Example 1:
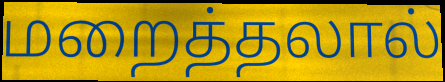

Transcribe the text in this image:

மறைத்தலால்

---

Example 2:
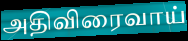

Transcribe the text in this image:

அதிவிரைவாய்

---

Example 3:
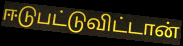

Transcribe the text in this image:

ஈடுபட்டுவிட்டான்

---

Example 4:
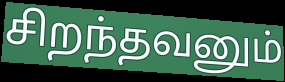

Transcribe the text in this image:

சிறந்தவனும்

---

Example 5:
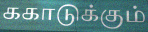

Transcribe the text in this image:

ககாடுக்கும்